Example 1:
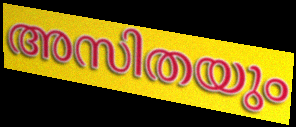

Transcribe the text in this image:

അസിതയും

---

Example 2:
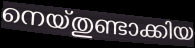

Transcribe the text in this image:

നെയ്തുണ്ടാക്കിയ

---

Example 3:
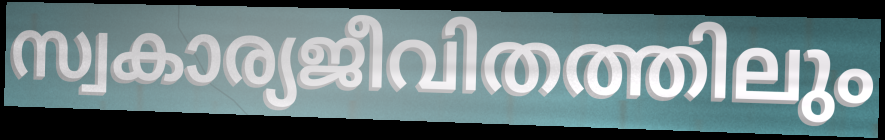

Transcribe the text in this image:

സ്വകാര്യജീവിതത്തിലും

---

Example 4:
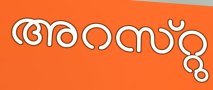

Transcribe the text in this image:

അറസ്‌റ്റു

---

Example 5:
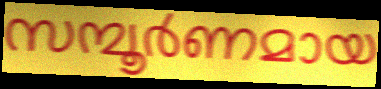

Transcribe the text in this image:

സമ്പൂർണമായ